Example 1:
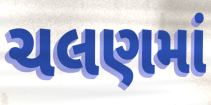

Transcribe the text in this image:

ચલણમાં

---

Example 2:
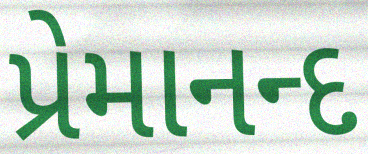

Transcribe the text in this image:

પ્રેમાનન્દ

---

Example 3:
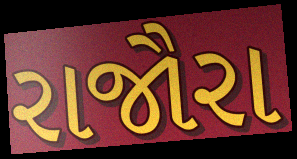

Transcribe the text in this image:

રાજૌરા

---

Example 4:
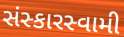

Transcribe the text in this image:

સંસ્કારસ્વામી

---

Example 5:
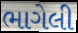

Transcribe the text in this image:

ભાગેલી